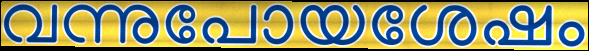
വന്നുപോയശേഷം